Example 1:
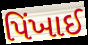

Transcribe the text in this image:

પિંખાઈ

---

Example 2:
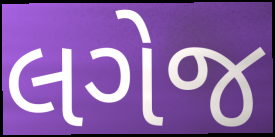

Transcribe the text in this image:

લગેજ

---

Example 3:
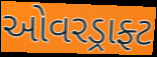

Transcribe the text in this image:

ઓવરડ્રાફ્ટ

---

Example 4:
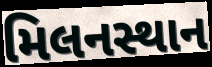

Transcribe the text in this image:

મિલનસ્થાન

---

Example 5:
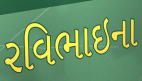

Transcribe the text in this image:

રવિભાઇના